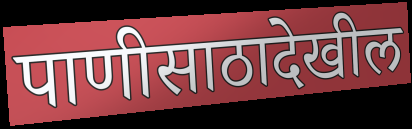
पाणीसाठादेखील